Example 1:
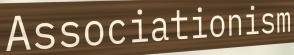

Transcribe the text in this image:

Associationism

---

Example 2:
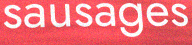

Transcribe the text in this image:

sausages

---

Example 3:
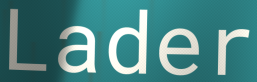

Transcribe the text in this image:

Lader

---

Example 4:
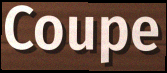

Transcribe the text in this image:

Coupe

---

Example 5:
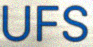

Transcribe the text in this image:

UFS